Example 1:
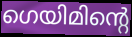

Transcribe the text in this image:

ഗെയിമിന്റെ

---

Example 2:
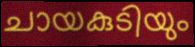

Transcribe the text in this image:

ചായകുടിയും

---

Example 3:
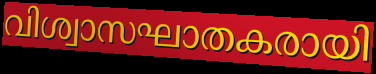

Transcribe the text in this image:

വിശ്വാസഘാതകരായി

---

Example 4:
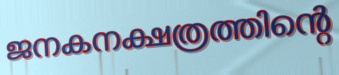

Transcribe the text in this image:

ജനകനക്ഷത്രത്തിന്റെ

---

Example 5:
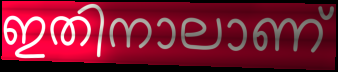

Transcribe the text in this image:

ഇതിനാലാണ്